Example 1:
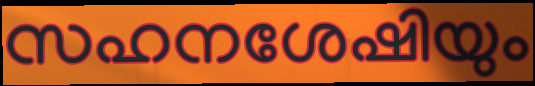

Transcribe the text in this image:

സഹനശേഷിയും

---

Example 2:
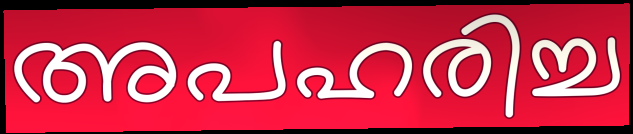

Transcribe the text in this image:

അപഹരിച്ച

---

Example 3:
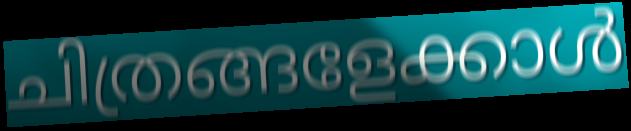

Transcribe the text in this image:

ചിത്രങ്ങളേക്കാൾ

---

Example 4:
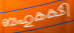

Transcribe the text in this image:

ബഹുകക്ഷി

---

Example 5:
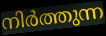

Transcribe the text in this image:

നിർത്തുന്ന